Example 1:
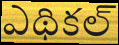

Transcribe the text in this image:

ఎథికల్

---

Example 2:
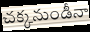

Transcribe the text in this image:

చక్కనుండీనా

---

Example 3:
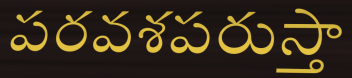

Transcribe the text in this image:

పరవశపరుస్తా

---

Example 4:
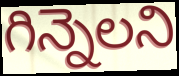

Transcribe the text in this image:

గిన్నెలని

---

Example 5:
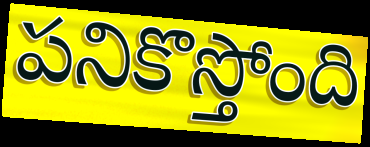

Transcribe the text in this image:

పనికొస్తోంది